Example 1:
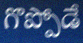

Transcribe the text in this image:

గొప్పోడే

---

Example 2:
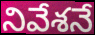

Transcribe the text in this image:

నివేశనే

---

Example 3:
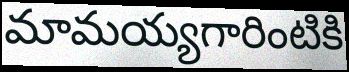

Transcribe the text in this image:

మామయ్యగారింటికి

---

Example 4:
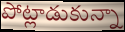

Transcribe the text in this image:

పోట్లాడుకున్నా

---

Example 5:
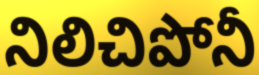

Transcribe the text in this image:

నిలిచిపోనీ